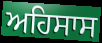
ਅਹਿਸਾਸ